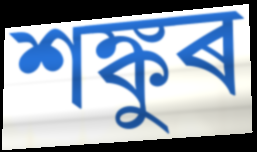
শঙ্কুৰ